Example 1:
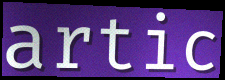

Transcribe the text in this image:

artic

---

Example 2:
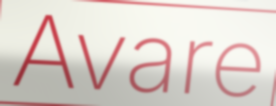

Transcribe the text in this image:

Avare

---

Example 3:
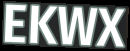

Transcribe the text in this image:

EKWX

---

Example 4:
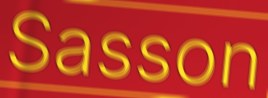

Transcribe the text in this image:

Sasson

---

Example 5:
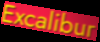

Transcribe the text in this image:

Excalibur